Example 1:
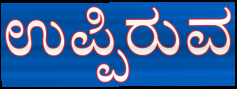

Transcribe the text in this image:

ಉಪ್ಪಿರುವ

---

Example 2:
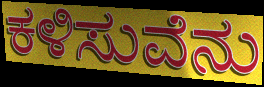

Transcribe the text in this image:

ಕಳಿಸುವೆನು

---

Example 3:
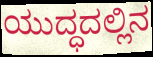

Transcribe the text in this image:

ಯುದ್ಧದಲ್ಲಿನ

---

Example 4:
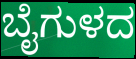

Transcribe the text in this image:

ಬೈಗುಳದ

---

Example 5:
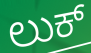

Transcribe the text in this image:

ಲುಕ್